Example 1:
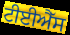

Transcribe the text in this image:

ਟੀਈਐੱਸ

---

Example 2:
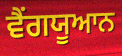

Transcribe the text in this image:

ਵੈਂਗਯੂਆਨ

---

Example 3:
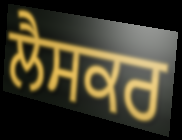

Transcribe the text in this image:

ਲੈਸਕਰ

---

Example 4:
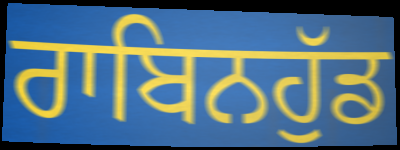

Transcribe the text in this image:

ਰਾਬਿਨਹੁੱਡ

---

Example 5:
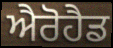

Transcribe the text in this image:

ਐਰੋਹੈਡ